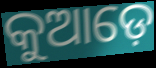
କୁଆଡ଼େ